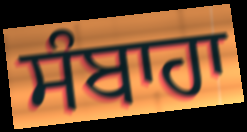
ਸੰਬਾਹਾ